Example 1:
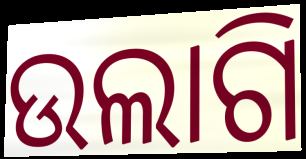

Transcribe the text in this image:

ଉଲାଗି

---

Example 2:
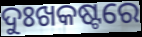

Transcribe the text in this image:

ଦୁଃଖକଷ୍ଟରେ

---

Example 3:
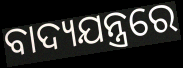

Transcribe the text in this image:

ବାଦ୍ୟଯନ୍ତ୍ରରେ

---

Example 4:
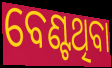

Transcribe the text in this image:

ବେଣ୍ଟଥିବା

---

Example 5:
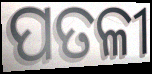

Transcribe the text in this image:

ପତଳୀ